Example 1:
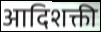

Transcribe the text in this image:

आदिशक्ती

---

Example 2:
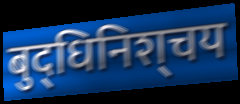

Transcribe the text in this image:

बुद्धिनिश्चय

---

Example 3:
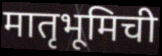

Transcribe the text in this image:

मातृभूमिची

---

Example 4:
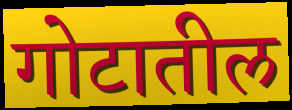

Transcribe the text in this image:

गोटातील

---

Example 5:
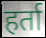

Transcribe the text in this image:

हर्ता